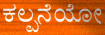
ಕಲ್ಪನೆಯೋ